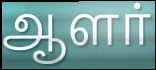
ஆளர்